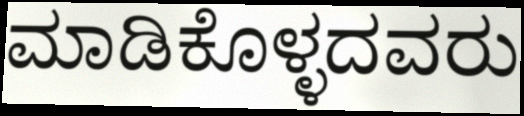
ಮಾಡಿಕೊಳ್ಳದವರು